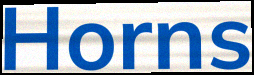
Horns